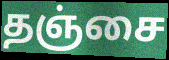
தஞ்சை